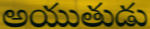
అయుతుడు